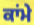
ਕਾਂਮੇ